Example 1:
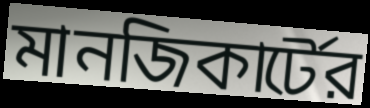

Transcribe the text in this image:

মানজিকার্টের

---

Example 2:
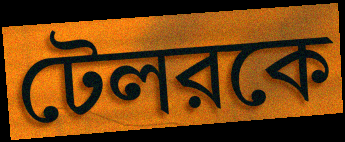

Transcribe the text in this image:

টেলরকে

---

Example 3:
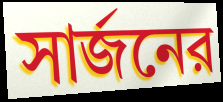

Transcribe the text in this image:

সার্জনের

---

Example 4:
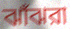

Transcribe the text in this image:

ঝাঁঝরা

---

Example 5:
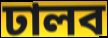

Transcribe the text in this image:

ঢালব